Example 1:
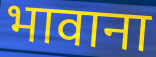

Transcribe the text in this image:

भावाना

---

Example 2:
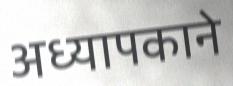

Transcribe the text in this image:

अध्यापकाने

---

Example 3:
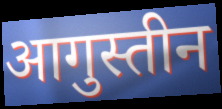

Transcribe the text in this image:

आगुस्तीन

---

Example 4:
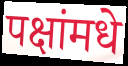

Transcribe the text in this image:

पक्षांमधे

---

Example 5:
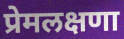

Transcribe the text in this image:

प्रेमलक्षणा